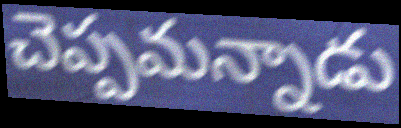
చెప్పమన్నాడు